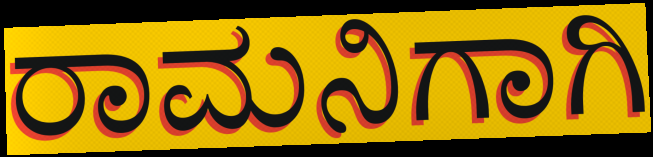
ರಾಮನಿಗಾಗಿ